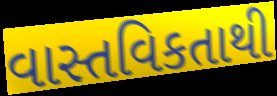
વાસ્તવિકતાથી